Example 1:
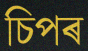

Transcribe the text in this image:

চিপৰ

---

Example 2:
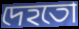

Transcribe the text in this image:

দেহতো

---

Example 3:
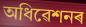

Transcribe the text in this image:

অধিৱেশনৰ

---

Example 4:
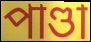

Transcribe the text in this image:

পাণ্ডা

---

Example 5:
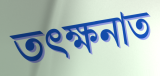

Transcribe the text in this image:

তৎক্ষনাত